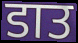
डाउ